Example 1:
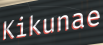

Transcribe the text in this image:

Kikunae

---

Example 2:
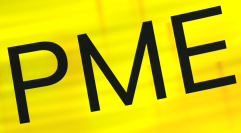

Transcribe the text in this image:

PME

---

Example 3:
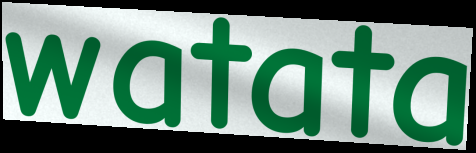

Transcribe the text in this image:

watata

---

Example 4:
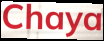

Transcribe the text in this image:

Chaya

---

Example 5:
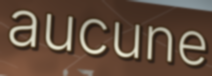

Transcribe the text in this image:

aucune